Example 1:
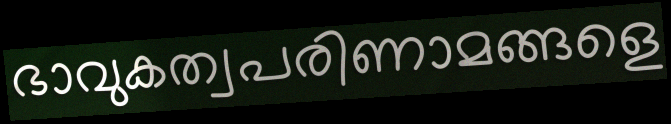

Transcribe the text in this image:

ഭാവുകത്വപരിണാമങ്ങളെ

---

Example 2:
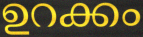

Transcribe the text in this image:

ഉറക്കം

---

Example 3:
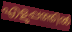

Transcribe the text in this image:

എളുപ്പത്തിൽ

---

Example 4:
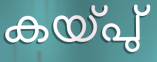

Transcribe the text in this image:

കയ്പു്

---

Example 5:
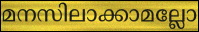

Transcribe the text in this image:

മനസിലാക്കാമല്ലോ